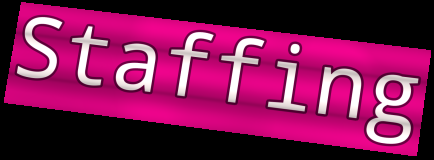
Staffing